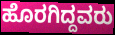
ಹೊರಗಿದ್ದವರು